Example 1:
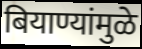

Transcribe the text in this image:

बियाण्यांमुळे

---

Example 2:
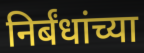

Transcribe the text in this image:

निर्बंधांच्या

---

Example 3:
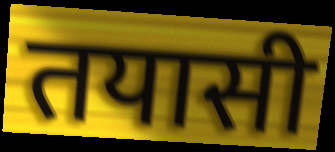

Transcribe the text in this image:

तयासी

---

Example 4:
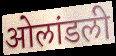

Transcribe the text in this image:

ओलांडली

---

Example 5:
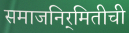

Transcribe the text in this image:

समाजनिर्मितीची